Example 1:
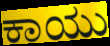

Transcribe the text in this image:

ಕಾಯು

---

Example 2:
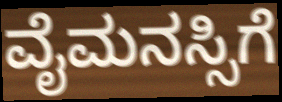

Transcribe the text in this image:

ವೈಮನಸ್ಸಿಗೆ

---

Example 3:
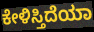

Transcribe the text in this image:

ಕೇಳಿಸ್ತಿದೆಯಾ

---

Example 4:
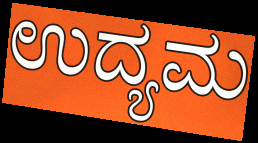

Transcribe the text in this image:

ಉದ್ಯಮ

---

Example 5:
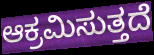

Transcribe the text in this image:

ಆಕ್ರಮಿಸುತ್ತದೆ